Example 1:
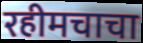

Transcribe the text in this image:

रहीमचाचा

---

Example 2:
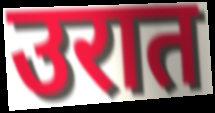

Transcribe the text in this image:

उरात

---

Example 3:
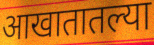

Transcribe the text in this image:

आखातातल्या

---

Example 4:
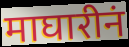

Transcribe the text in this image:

माघारीनं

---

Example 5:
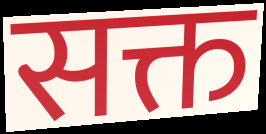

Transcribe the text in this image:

सक्त